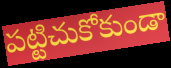
పట్టిచుకోకుండా